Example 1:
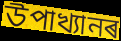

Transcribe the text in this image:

উপাখ্যানৰ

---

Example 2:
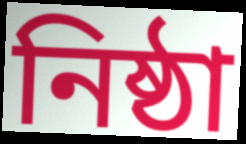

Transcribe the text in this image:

নিষ্ঠা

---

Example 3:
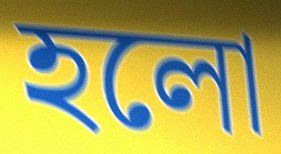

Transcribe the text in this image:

হলো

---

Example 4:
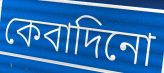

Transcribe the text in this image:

কেবাদিনো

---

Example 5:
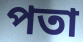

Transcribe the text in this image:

পতা